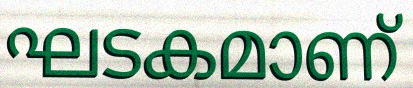
ഘടകമാണ്